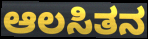
ಆಲಸಿತನ